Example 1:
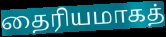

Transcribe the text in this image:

தைரியமாகத்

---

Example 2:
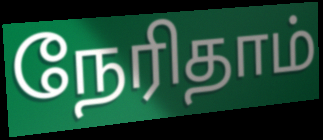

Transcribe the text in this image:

நேரிதாம்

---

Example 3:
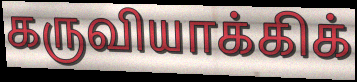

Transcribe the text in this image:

கருவியாக்கிக்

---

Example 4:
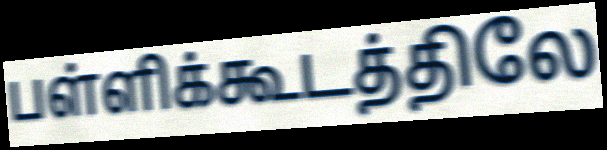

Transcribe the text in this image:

பள்ளிக்கூடத்திலே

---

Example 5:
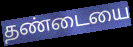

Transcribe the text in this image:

தண்டையை